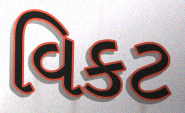
વિકટ